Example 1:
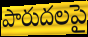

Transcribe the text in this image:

పారుదలపై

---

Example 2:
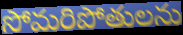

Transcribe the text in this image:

సోమరిపోతులను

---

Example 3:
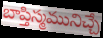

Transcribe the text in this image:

బాప్తిస్మమునిచ్చే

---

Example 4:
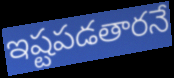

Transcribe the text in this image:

ఇష్టపడతారనే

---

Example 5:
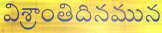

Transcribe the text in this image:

విశ్రాంతిదినమున